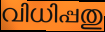
വിധിപ്പതു